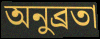
অনুব্রতা